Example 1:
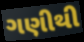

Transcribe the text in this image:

ગણીથી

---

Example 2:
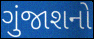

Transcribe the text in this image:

ગુંજાશનો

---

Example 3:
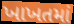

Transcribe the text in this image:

ખાખતમાં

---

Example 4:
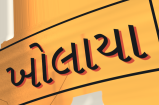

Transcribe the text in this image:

ખોલાયા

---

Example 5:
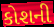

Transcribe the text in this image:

કોશની